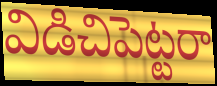
విడిచిపెట్టరా